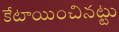
కేటాయించినట్టు